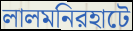
লালমনিরহাটে